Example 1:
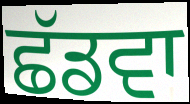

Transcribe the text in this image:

ਛੱਡਵਾ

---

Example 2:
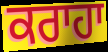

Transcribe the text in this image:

ਕਰਾਹਾ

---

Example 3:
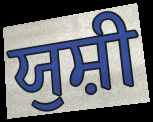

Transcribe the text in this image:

ਯੁਸ਼ੀ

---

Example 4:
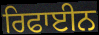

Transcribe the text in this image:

ਰਿਫਾਈਨ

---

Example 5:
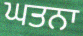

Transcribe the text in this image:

ਘਤਨਾ